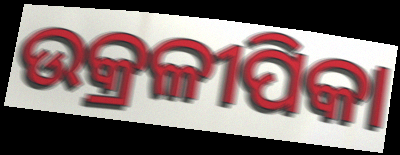
ଉକ୍ରଳୀପିକା